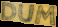
DUM